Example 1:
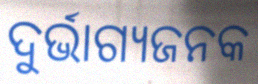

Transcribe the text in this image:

ଦୁର୍ଭାଗ୍ୟଜନକ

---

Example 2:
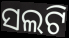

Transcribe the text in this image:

ସଲଟି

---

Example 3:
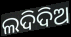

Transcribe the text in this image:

ଲଦିଦିଅ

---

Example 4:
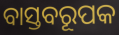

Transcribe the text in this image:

ବାସ୍ତବରୂପକ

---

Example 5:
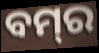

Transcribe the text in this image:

ବମ୍‌ର